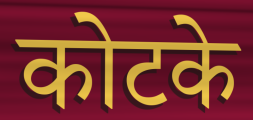
कोटके